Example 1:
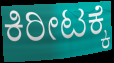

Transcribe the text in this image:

ಕಿರೀಟಕ್ಕೆ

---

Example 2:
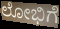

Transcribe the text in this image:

ಲೋಭಿಗೆ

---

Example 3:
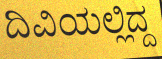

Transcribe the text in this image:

ದಿವಿಯಲ್ಲಿದ್ದ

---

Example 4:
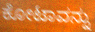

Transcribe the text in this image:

ಕೋಟಾವನ್ನು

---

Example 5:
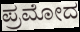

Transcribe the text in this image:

ಪ್ರಮೋದ